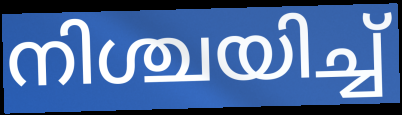
നിശ്ചയിച്ച്